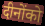
दीनोंको